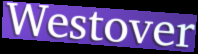
Westover